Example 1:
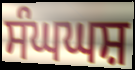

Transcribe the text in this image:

ਸੰਘਘਸ਼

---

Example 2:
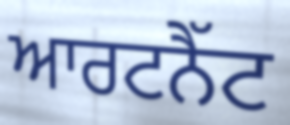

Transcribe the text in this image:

ਆਰਟਨੈੱਟ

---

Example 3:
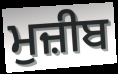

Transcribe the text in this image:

ਮੁਜ਼ੀਬ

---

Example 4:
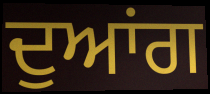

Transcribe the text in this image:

ਦੁਆਂਗ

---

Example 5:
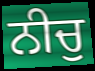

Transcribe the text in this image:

ਨੀਚੁ